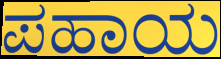
ಪಹಾಯ